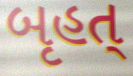
બૃહત્